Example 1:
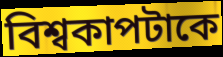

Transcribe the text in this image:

বিশ্বকাপটাকে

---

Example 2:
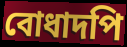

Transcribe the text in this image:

বোধাদপি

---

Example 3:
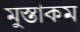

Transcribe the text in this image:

মুস্তাকম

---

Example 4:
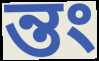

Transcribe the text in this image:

ন্তং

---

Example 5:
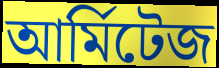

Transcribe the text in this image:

আর্মিটেজ